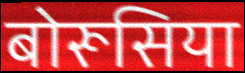
बोरूसिया